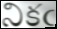
నికఁ